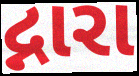
દ્નારા